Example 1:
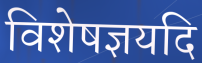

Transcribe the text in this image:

विशेषज्ञयदि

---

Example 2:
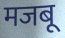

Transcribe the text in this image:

मजबू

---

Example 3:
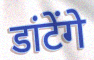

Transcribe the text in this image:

डांटेंगे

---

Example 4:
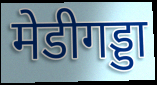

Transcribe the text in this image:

मेडीगड्डा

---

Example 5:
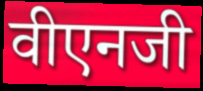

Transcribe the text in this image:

वीएनजी